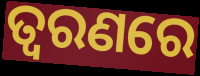
ତ୍ଵରଣରେ